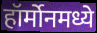
हॉर्मोनमध्ये